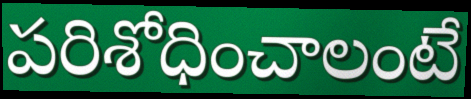
పరిశోధించాలంటే